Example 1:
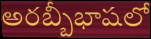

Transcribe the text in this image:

అరబ్బీభాషలో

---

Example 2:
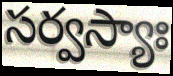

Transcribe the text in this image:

సర్వస్యాః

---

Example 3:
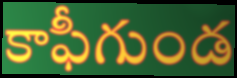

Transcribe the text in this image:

కాఫీగుండ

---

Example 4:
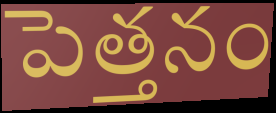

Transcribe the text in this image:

పెత్తనం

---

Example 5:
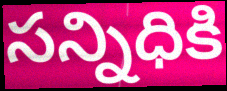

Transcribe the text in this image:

సన్నిధికి